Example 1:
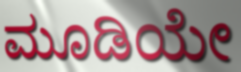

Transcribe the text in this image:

ಮೂಡಿಯೇ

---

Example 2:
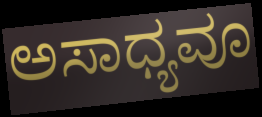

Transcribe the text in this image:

ಅಸಾಧ್ಯವೂ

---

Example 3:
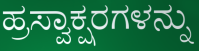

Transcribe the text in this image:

ಹ್ರಸ್ವಾಕ್ಷರಗಳನ್ನು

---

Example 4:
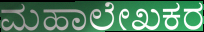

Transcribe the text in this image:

ಮಹಾಲೇಖಕರ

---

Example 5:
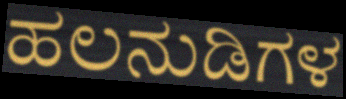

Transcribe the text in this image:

ಹಲನುಡಿಗಳ